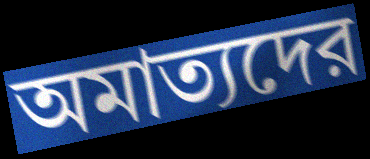
অমাত্যদের